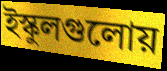
ইস্কুলগুলোয়